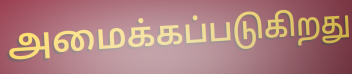
அமைக்கப்படுகிறது